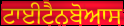
ਟਾਈਟੈਨਬੋਆਸ